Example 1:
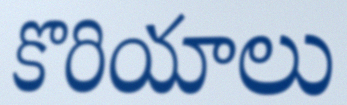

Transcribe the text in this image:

కొరియాలు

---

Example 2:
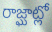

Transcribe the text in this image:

రాజ్ఘాట్లో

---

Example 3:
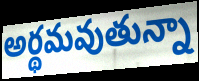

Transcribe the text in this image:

అర్థమవుతున్నా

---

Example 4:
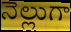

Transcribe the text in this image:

నెల్లుగా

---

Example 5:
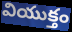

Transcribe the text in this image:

వియుక్తం